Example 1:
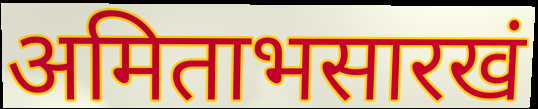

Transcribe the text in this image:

अमिताभसारखं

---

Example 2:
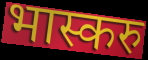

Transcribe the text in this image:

भास्करु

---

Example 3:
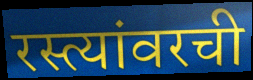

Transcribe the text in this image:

रस्त्यांवरची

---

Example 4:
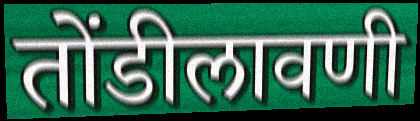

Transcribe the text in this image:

तोंडीलावणी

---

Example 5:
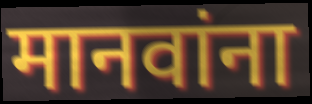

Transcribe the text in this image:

मानवांना